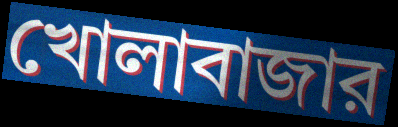
খোলাবাজার